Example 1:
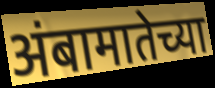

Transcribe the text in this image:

अंबामातेच्या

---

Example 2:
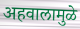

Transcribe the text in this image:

अहवालामुळे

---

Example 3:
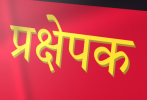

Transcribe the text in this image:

प्रक्षेपक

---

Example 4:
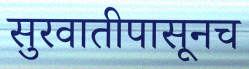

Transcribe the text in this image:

सुरवातीपासूनच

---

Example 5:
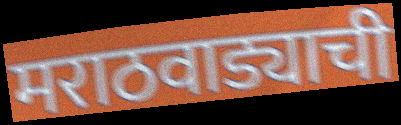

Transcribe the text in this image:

मराठवाड्याची